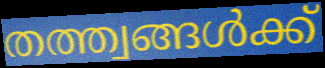
തത്ത്വങ്ങൾക്ക്